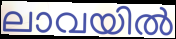
ലാവയിൽ